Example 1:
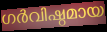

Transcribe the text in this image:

ഗർവിഷ്ഠമായ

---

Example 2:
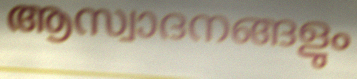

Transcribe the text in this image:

ആസ്വാദനങ്ങളും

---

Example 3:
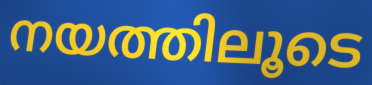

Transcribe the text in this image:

നയത്തിലൂടെ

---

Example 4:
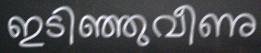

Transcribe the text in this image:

ഇടിഞ്ഞുവീണു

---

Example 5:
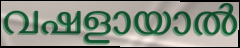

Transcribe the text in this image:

വഷളായാൽ